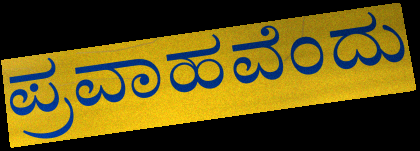
ಪ್ರವಾಹವೆಂದು